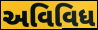
અવિવિધ